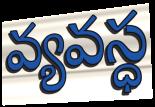
వ్యవస్ధ